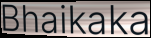
Bhaikaka